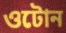
ওটোন